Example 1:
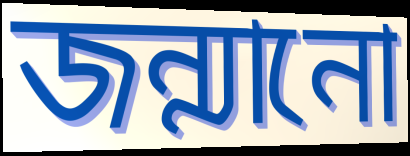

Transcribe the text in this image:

জন্মানো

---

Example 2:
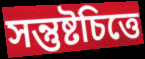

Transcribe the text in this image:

সন্তুষ্টচিত্তে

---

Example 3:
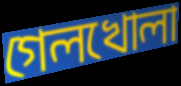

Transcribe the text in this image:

গেলখোলা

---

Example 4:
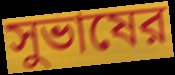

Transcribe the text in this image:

সুভাষের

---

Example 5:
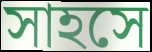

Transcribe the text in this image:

সাহসে